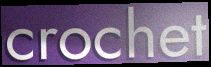
crochet